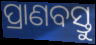
ପ୍ରାଣବସ୍ତୁ